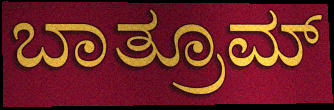
ಬಾತ್ರೂಮ್